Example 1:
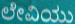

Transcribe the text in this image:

ಲೇವಿಯು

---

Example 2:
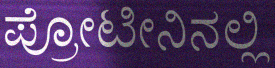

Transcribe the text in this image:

ಪ್ರೋಟೀನಿನಲ್ಲಿ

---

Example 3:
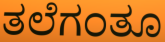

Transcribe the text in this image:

ತಲೆಗಂತೂ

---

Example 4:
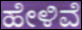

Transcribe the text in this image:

ಹೇಳಿವೆ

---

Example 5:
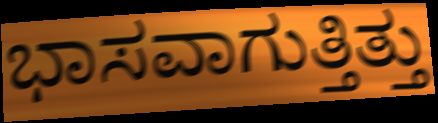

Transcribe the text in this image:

ಭಾಸವಾಗುತ್ತಿತ್ತು